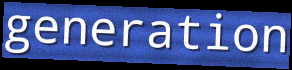
generation